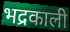
भद्रकाली